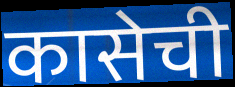
कासेची